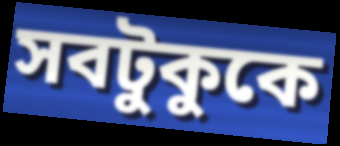
সবটুকুকে